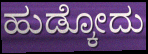
ಹುಡ್ಕೋದು